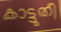
കാട്ടുതീ